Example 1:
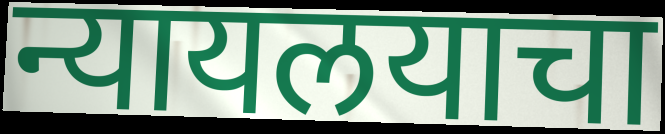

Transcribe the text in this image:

न्यायलयाचा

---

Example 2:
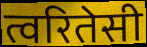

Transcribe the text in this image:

त्वरितेसी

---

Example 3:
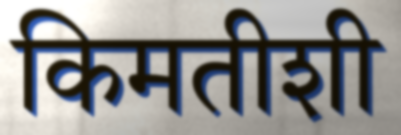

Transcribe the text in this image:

किमतीशी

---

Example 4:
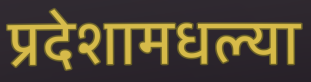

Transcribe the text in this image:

प्रदेशामधल्या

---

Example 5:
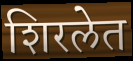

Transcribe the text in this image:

शिरलेत